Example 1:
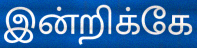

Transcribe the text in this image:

இன்றிக்கே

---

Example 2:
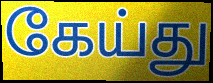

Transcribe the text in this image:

கேய்து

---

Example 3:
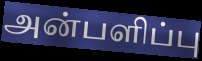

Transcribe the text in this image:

அன்பளிப்பு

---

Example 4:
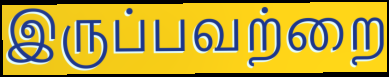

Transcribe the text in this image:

இருப்பவற்றை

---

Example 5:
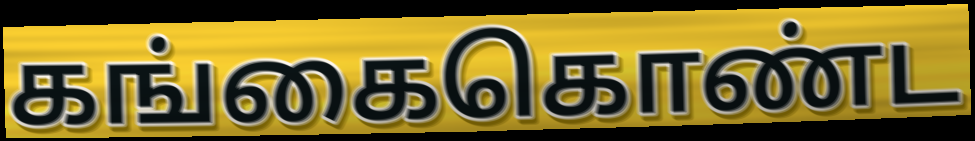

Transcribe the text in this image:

கங்கைகொண்ட